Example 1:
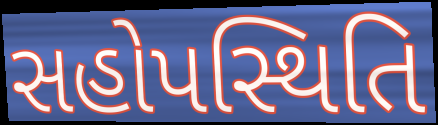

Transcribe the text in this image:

સહોપસ્થિતિ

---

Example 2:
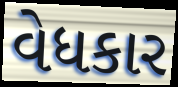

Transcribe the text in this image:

વેધકાર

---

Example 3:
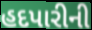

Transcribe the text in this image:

હદપારીની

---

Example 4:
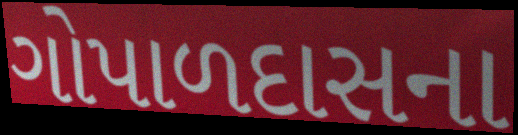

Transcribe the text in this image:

ગોપાળદાસના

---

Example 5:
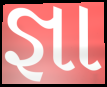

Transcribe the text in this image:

જ્ઞા